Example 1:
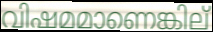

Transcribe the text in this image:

വിഷമമാണെങ്കില്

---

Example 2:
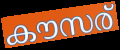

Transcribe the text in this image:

കൗസര്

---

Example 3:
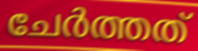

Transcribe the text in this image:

ചേർത്തത്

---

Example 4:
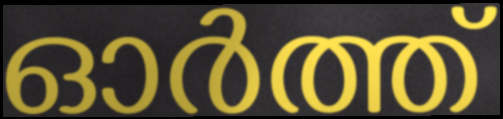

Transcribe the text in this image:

ഓർത്ത്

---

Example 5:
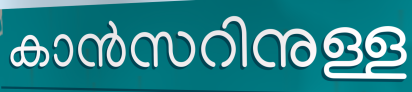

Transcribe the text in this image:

കാൻസറിനുള്ള